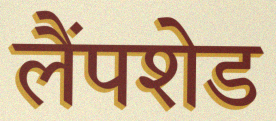
लैंपशेड